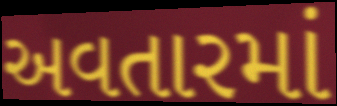
અવતારમાં